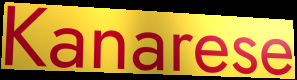
Kanarese